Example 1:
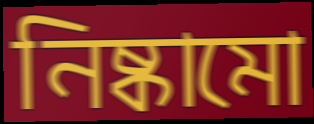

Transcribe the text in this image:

নিষ্কামো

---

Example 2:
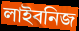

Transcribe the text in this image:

লাইবনিজ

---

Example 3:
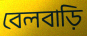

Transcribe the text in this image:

বেলবাড়ি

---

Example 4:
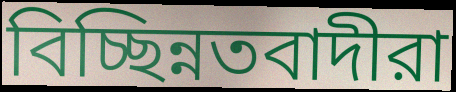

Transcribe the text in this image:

বিচ্ছিন্নতবাদীরা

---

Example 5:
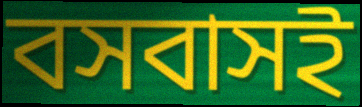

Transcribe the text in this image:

বসবাসই